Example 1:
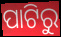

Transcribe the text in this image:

ପାଟିରୁ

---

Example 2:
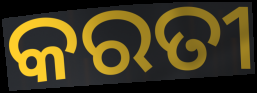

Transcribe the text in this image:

କରତୀ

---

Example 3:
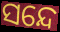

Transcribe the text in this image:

ସନ୍ଦେ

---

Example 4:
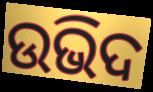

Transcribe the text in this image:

ଉଭିଦ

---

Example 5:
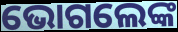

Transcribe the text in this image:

ଭୋଗଲେଙ୍କ